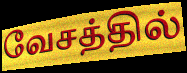
வேசத்தில்